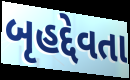
બૃહદ્દેવતા